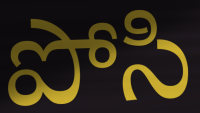
పోసి